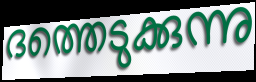
ദത്തെടുക്കുന്നു